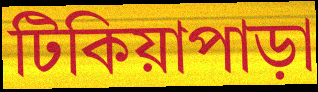
টিকিয়াপাড়া